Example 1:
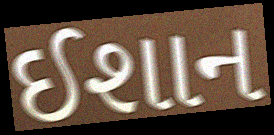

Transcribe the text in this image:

ઈશાન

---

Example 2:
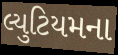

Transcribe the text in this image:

લ્યુટિયમના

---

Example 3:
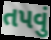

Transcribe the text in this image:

તપવું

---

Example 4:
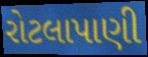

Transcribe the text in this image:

રોટલાપાણી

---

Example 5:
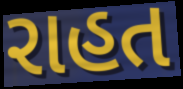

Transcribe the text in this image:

રાહત